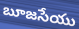
బూజసేయు